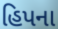
હિપના